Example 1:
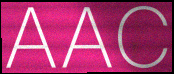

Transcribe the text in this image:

AAC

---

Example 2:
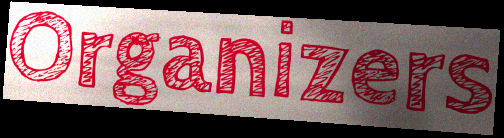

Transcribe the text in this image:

Organizers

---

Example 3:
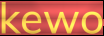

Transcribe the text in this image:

kewo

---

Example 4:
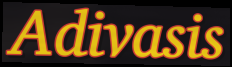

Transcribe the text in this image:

Adivasis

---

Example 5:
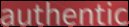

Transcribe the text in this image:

authentic